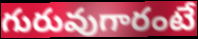
గురువుగారంటే